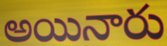
అయినారు